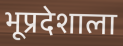
भूप्रदेशाला